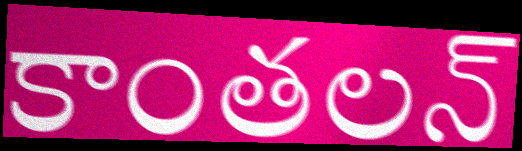
కాంతలన్